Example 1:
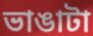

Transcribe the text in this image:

ভাঙাটা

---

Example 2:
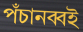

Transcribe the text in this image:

পঁচানব্বই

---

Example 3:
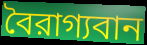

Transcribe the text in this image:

বৈরাগ্যবান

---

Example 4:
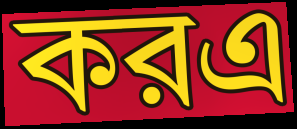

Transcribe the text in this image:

করএ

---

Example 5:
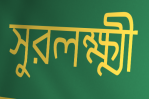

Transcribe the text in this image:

সুরলক্ষ্মী